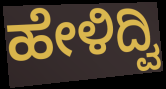
ಹೇಳಿದ್ವಿ